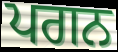
ਪਗਨ